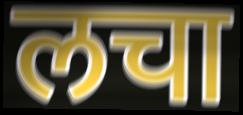
लचा